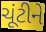
ચૂંટીને